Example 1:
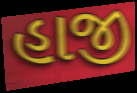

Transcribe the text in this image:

હાજી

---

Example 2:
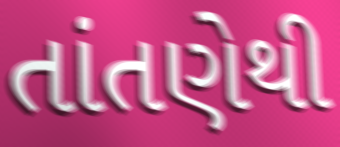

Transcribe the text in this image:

તાંતણેથી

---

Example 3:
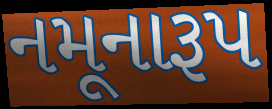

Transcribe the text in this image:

નમૂનારૂપ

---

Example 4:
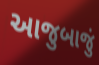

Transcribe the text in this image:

આજુબાજું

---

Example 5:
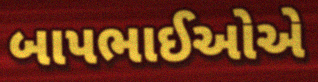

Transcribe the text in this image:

બાપભાઈઓએ